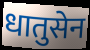
धातुसेन